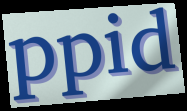
ppid